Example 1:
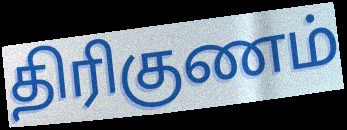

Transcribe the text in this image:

திரிகுணம்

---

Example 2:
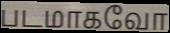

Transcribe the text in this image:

படமாகவோ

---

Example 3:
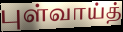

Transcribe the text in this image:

புள்வாய்த்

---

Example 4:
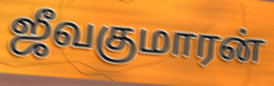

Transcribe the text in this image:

ஜீவகுமாரன்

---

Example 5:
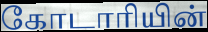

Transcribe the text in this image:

கோடாரியின்